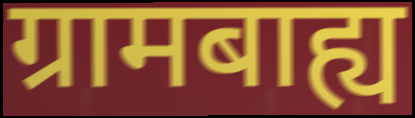
ग्रामबाह्य